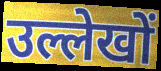
उल्लेखों